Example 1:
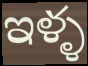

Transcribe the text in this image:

ఇళ్ళ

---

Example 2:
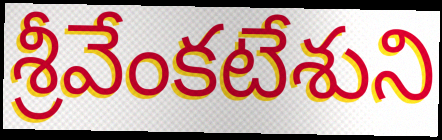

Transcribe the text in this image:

శ్రీవేంకటేశుని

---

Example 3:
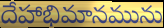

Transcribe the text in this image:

దేహాభిమానమును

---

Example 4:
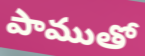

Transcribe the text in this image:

పాముతో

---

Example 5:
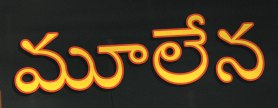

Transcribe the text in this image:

మూలేన